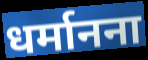
धर्मानना